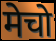
मेचो